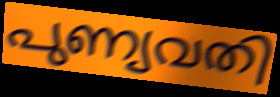
പുണ്യവതി